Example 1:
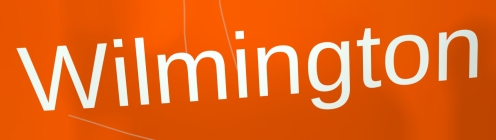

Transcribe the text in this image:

Wilmington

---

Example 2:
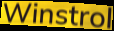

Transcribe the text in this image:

Winstrol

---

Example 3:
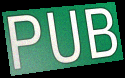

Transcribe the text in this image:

PUB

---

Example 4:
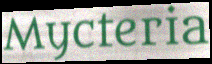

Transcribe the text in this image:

Mycteria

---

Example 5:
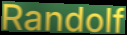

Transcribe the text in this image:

Randolf